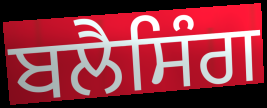
ਬਲੈਸਿੰਗ